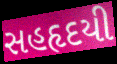
સહહૃદયી